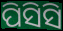
ପିସିସି